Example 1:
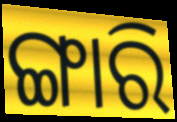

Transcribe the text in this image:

ଙ୍ଗାରି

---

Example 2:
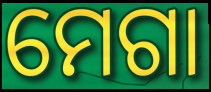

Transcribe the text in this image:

ମେଗା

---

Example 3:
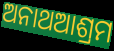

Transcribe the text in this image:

ଅନାଥଆଶ୍ରମ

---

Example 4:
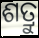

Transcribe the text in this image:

ଶତ୍ରୁ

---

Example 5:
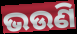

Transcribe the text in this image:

ଭଉଣି